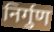
निर्गुण